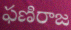
ఫణిరాజ